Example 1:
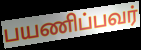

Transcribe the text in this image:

பயணிப்பவர்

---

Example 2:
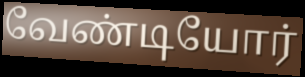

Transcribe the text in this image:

வேண்டியோர்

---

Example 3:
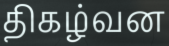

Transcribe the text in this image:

திகழ்வன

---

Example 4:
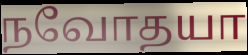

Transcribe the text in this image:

நவோதயா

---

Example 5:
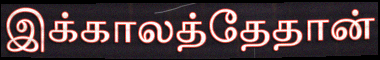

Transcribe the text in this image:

இக்காலத்தேதான்